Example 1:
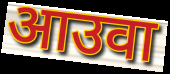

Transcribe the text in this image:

आउवा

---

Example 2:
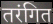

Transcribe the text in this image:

तरंगित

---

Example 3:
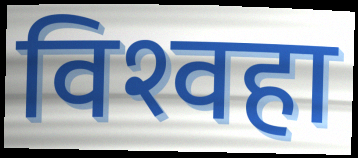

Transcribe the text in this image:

विश्वहा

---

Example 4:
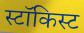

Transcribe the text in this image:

स्टॉकिस्ट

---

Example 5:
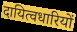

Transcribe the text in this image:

दायित्वधारियों